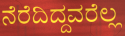
ನೆರೆದಿದ್ದವರೆಲ್ಲ